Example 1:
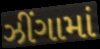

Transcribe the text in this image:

ઝીંગામાં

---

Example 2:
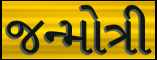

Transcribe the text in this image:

જન્મોત્રી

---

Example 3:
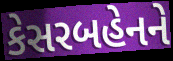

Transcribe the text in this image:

કેસરબહેનને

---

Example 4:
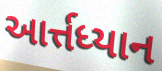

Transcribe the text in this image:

આર્ત્તધ્યાન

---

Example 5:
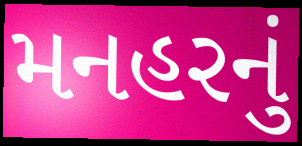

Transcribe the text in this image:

મનહરનું